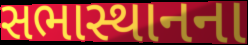
સભાસ્થાનના